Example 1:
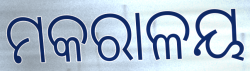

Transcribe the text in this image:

ମକରାଳୟ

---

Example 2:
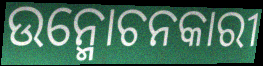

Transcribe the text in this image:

ଉନ୍ମୋଚନକାରୀ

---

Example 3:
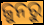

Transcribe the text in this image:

ଜୁନରୁ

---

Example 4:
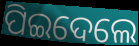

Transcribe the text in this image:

ପିଇଦେଲେ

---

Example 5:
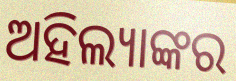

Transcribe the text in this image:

ଅହିଲ୍ୟାଙ୍କର